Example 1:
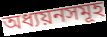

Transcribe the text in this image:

অধ্যয়নসমূহ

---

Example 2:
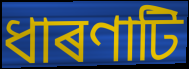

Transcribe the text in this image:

ধাৰণাটি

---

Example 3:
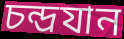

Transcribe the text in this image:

চন্দ্ৰযান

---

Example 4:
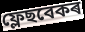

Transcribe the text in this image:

ফ্লেছবেকৰ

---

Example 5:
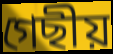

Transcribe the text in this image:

গেছীয়